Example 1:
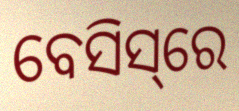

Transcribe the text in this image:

ବେସିସ୍‌ରେ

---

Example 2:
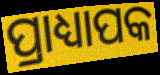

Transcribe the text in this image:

ପ୍ରାଧ୍ୟାପକ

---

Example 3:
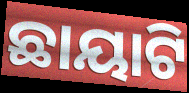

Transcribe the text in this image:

ଛାୟାଟି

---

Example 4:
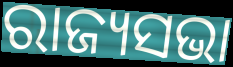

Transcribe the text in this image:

ରାଜ୍ୟସଭା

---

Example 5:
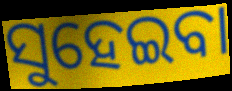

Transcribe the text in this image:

ସୁହେଇବା